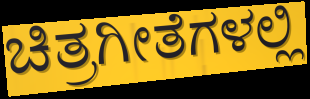
ಚಿತ್ರಗೀತೆಗಳಲ್ಲಿ